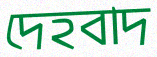
দেহবাদ